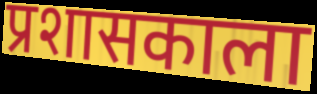
प्रशासकाला